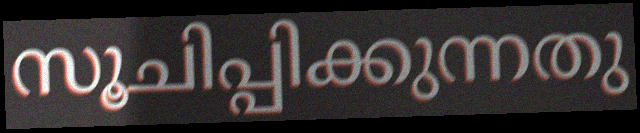
സൂചിപ്പിക്കുന്നതു